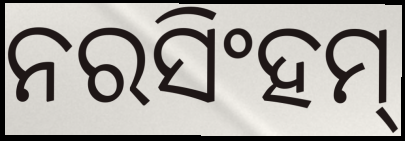
ନରସିଂହମ୍